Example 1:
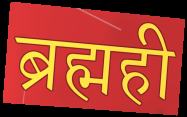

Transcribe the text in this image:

ब्रह्मही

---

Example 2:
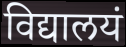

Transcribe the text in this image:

विद्यालयं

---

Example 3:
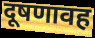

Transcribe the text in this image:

दूषणावह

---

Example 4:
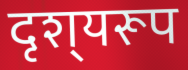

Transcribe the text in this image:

दृश्यरूप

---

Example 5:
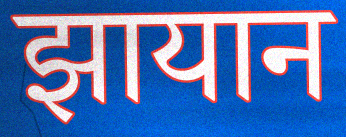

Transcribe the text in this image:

झायान